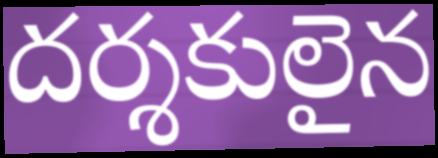
దర్శకులైన